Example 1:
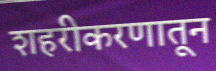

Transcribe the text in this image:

शहरीकरणातून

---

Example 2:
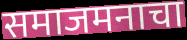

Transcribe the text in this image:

समाजमनाचा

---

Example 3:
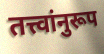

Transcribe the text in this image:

तत्त्वांनुरूप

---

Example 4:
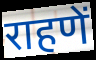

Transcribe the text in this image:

राहणें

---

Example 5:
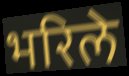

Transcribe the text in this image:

भरिले